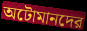
অটোমানদের